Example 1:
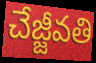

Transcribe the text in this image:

చేజ్జీవతి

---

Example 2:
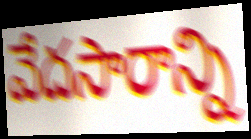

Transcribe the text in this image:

వేదసారాన్ని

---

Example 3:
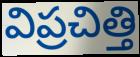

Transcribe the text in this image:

విప్రచిత్తి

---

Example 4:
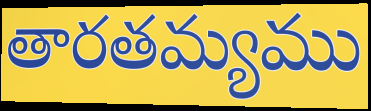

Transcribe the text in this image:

తారతమ్యము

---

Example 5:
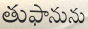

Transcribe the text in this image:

తుఫానును